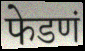
फेडणं